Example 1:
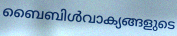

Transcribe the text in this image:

ബൈബിൾവാക്യങ്ങളുടെ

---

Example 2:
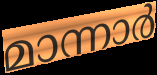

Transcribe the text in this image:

മാന്നാർ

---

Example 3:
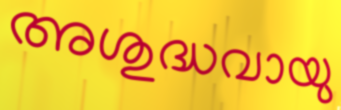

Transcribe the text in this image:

അശുദ്ധവായു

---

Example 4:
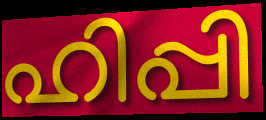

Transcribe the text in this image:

ഹിപ്പി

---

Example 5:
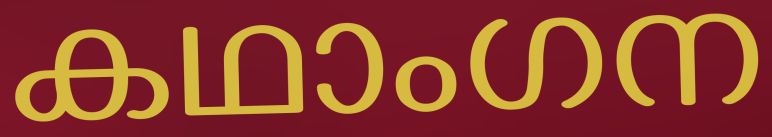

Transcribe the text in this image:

കഥാംഗന